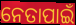
ନେତାପାଇଁ